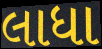
લાધા